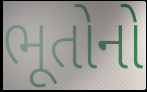
ભૂતોનો